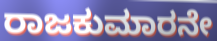
ರಾಜಕುಮಾರನೇ